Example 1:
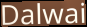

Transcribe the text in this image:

Dalwai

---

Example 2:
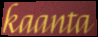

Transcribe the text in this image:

kaanta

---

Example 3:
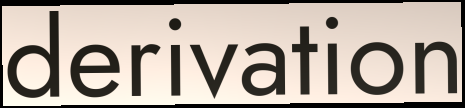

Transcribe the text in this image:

derivation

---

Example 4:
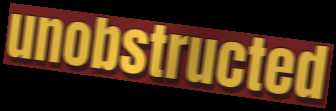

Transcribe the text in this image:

unobstructed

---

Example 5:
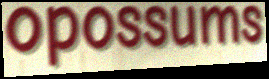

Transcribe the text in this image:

opossums